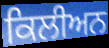
ਕਿਲੀਅਨ